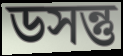
ডসন্তু